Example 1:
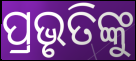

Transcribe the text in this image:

ପ୍ରଭୃତିଙ୍କୁ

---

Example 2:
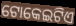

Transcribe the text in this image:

ଟୋକେଇଟିଏ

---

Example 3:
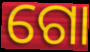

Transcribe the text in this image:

ଗୋ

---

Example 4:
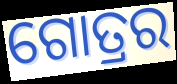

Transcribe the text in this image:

ଗୋତ୍ରର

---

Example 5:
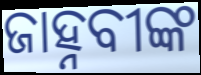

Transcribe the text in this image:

ଜାହ୍ନବୀଙ୍କ